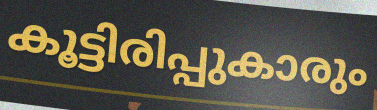
കൂട്ടിരിപ്പുകാരും